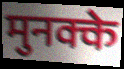
मुनक्के